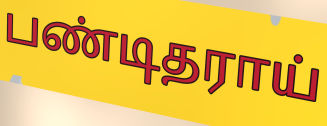
பண்டிதராய்